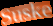
Suske